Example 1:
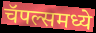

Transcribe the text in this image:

चॅपल्समध्ये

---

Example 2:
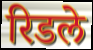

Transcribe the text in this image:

रिडले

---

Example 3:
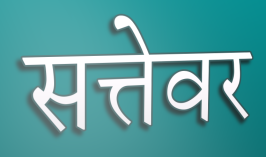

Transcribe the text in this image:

सत्तेवर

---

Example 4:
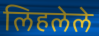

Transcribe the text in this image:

लिहलेले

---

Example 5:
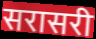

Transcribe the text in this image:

सरासरी